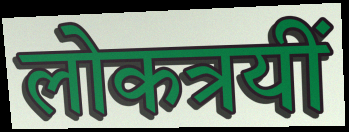
लोकत्रयीं